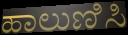
ಹಾಲುಣಿಸಿ